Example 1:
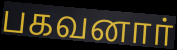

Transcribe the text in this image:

பகவனார்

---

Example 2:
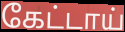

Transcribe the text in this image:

கேட்டாய்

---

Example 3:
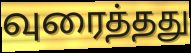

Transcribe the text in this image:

வுரைத்தது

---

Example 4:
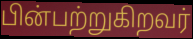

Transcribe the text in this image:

பின்பற்றுகிறவர்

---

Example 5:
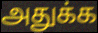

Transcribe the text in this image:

அதுக்க